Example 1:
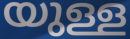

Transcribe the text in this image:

യുള്ള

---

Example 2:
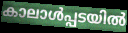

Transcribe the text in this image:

കാലാൾപ്പടയിൽ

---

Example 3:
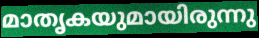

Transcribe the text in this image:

മാതൃകയുമായിരുന്നു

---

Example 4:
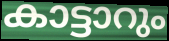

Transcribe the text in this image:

കാട്ടാറും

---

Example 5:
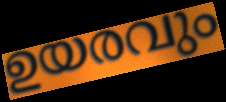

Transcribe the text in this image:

ഉയരവും